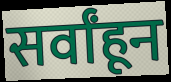
सर्वांहून